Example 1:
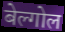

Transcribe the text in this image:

बेल्गोल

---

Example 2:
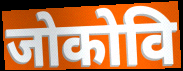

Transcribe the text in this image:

जोकोवि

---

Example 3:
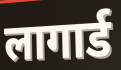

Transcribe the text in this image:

लागार्ड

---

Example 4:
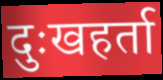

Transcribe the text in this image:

दुःखहर्ता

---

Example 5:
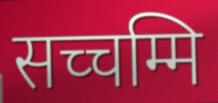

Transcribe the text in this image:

सच्चम्मि